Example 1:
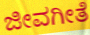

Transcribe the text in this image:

ಜೀವಗೀತೆ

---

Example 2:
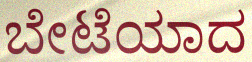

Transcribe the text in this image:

ಬೇಟೆಯಾದ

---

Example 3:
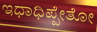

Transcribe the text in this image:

ಇಧಾಧಿಪ್ಪೇತೋ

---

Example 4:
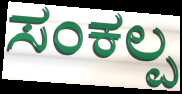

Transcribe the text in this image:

ಸಂಕಲ್ಪ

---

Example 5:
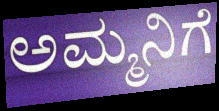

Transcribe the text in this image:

ಅಮ್ಮನಿಗೆ